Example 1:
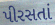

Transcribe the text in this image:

પીરસતાં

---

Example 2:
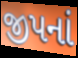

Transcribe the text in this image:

જીપનાં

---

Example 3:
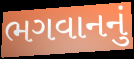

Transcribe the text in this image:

ભગવાનનું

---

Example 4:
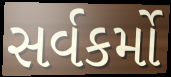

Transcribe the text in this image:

સર્વકર્મો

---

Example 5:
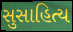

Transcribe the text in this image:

સુસાહિત્ય